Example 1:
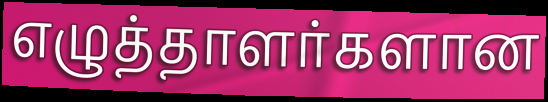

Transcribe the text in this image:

எழுத்தாளர்களான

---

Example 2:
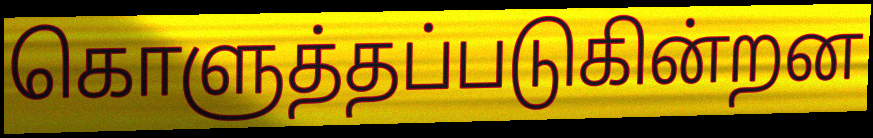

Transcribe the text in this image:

கொளுத்தப்படுகின்றன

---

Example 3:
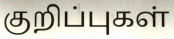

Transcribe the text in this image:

குறிப்புகள்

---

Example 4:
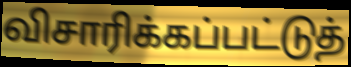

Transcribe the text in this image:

விசாரிக்கப்பட்டுத்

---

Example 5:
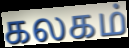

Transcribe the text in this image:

கலகம்